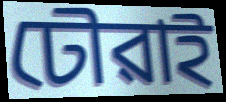
ঢৌৱাই